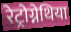
रेट्रोग्नेथिया